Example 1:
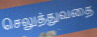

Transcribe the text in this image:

செலுத்துவதை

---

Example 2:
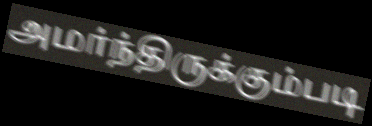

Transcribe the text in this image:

அமர்ந்திருக்கும்படி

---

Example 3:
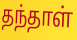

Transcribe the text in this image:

தந்தாள்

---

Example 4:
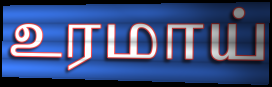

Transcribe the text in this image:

உரமாய்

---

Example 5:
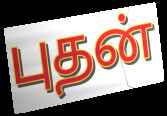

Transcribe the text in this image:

புதன்